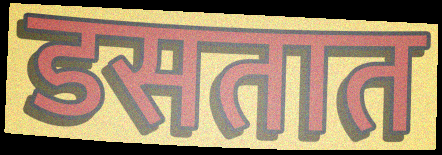
डसतात